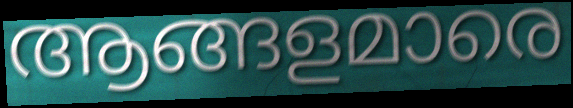
ആങ്ങളമാരെ